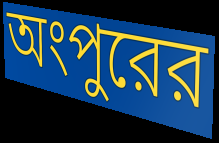
অংপুরের